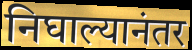
निघाल्यानंतर